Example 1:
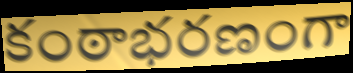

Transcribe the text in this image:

కంఠాభరణంగా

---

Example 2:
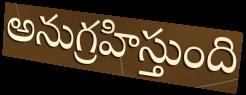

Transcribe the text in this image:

అనుగ్రహిస్తుంది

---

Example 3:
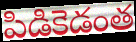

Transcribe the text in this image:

పిడికెడంత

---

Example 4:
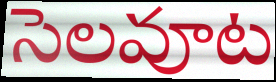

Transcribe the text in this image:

సెలవూట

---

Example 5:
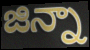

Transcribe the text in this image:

జిన్నా